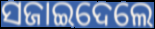
ସଜାଇଦେଲେ